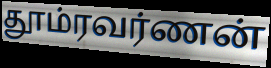
தூம்ரவர்ணன்